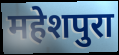
महेशपुरा